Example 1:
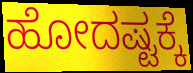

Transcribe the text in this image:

ಹೋದಷ್ಟಕ್ಕೆ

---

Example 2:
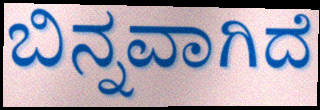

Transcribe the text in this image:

ಬಿನ್ನವಾಗಿದೆ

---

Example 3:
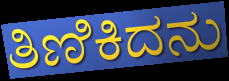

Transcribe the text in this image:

ತಿಣಿಕಿದನು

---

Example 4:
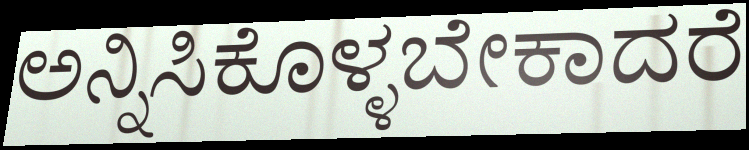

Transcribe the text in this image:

ಅನ್ನಿಸಿಕೊಳ್ಳಬೇಕಾದರೆ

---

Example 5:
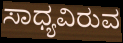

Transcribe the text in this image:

ಸಾಧ್ಯವಿರುವ